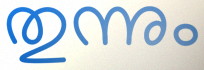
തുന്നും